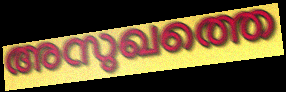
അസുഖത്തെ